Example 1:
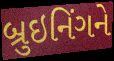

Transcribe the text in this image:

બ્રુઇનિંગને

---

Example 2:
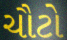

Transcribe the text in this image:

ચૌટો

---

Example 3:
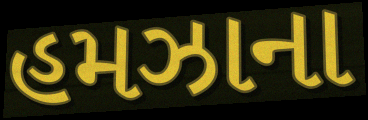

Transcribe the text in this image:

હમઝાના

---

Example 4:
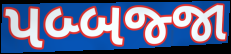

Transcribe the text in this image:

પબ્બજ્જા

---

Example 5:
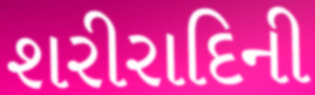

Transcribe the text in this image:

શરીરાદિની